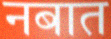
नबात